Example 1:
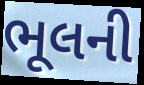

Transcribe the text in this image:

ભૂલની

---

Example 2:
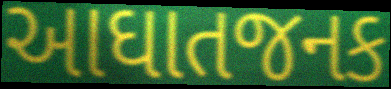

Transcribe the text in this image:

આઘાતજનક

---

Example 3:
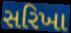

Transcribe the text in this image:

સરિખા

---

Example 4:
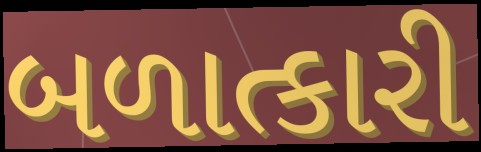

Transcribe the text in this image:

બળાત્કારી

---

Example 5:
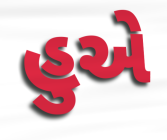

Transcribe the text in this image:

હુએ